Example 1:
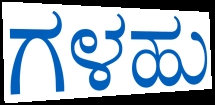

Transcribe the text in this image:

ಗಳಹು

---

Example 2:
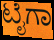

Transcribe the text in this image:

ಟೈಗಾ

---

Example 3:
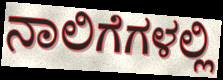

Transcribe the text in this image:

ನಾಲಿಗೆಗಳಲ್ಲಿ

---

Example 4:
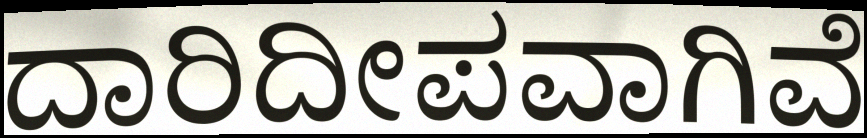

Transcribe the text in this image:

ದಾರಿದೀಪವಾಗಿವೆ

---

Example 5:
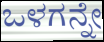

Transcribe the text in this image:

ಒಳಗನ್ನೇ